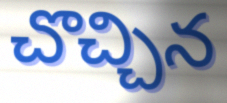
చొచ్చిన